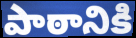
పాఠానికి